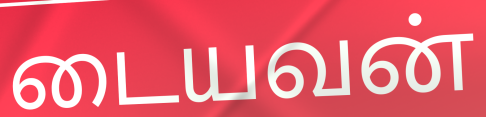
டையவன்